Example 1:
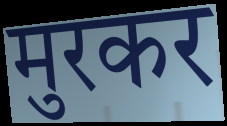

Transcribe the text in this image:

मुरकर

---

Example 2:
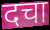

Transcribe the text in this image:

दचा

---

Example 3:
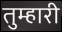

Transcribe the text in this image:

तुम्‍हारी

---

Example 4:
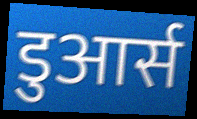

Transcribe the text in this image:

डुआर्स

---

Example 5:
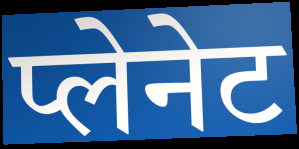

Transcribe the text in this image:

प्लेनेट